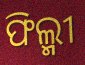
ଫିଲ୍ମୀ